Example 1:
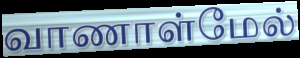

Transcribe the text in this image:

வாணாள்மேல்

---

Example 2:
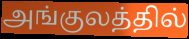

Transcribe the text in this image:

அங்குலத்தில்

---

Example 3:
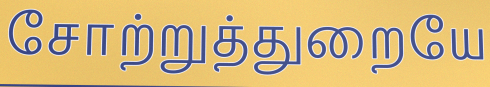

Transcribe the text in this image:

சோற்றுத்துறையே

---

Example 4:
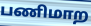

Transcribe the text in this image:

பணிமாற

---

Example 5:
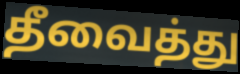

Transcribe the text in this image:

தீவைத்து